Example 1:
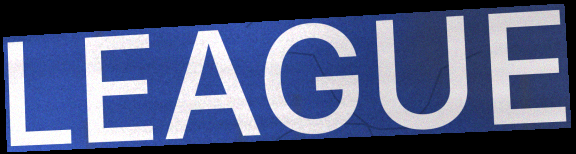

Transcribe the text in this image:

LEAGUE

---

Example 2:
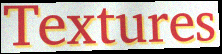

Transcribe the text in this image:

Textures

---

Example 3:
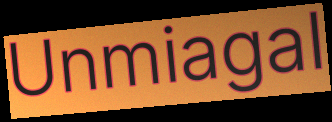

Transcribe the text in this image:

Unmiagal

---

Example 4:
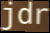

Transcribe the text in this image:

jdr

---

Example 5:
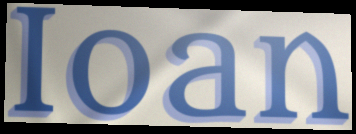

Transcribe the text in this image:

Ioan